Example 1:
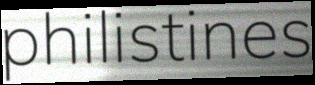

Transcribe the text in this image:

philistines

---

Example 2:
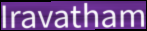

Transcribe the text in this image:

Iravatham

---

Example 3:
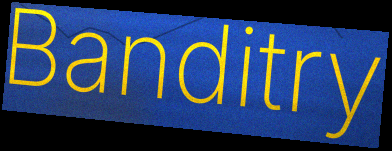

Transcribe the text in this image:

Banditry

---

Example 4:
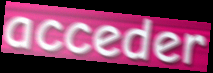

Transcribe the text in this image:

acceder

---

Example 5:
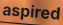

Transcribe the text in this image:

aspired